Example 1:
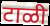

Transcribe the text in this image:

टाळी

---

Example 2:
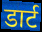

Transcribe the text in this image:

डार्ट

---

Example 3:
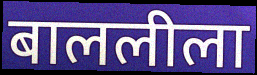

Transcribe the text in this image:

बाललीला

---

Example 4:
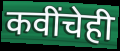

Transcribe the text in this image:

कवींचेही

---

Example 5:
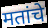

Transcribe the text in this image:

मतांचे